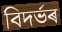
বিদৰ্ভৰ